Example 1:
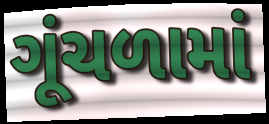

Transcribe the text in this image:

ગૂંચળામાં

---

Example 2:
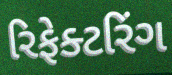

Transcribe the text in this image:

રિફેક્ટરિંગ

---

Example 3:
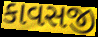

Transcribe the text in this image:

કાવસજી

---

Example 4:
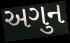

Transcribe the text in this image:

અગુન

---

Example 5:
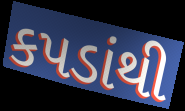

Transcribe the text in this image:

કપડાંથી